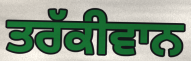
ਤਰੱਕੀਵਾਨ